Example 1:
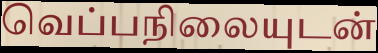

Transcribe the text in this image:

வெப்பநிலையுடன்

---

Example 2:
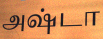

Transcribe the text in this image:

அஷ்டா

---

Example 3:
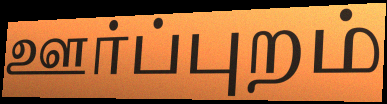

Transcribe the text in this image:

ஊர்ப்புறம்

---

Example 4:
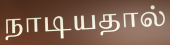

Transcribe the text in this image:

நாடியதால்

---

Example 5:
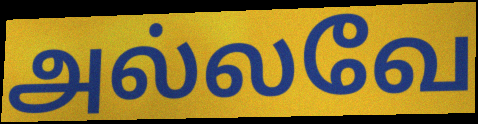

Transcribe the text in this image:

அல்லவே